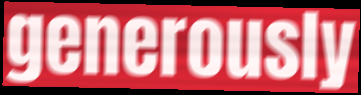
generously